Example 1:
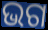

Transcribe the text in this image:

ଭଗ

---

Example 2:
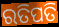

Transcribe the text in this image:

ରତିପତି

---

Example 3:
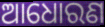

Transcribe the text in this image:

ଆଧୋରଣ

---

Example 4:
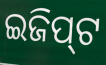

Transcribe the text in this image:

ଇଜିପ୍‌ଟ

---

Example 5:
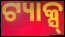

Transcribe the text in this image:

ଟ୍ୟାକ୍ସ୍